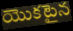
యొకటైన